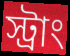
স্ট্রাং